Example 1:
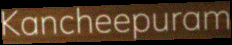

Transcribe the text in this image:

Kancheepuram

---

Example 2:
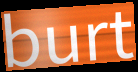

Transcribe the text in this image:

burt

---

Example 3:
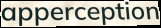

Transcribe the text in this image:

apperception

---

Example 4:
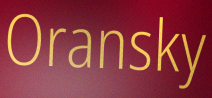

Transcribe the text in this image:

Oransky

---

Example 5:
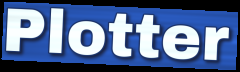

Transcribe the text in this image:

Plotter